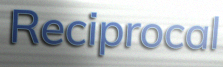
Reciprocal